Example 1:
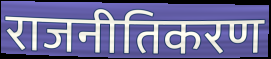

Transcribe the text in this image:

राजनीतिकरण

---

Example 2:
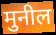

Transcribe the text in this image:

मुनील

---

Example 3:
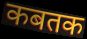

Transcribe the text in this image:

कबतक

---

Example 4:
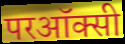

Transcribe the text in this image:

परऑक्सी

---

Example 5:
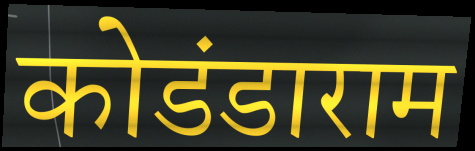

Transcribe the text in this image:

कोडंडाराम